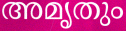
അമൃതും